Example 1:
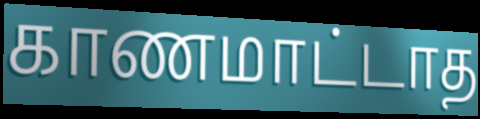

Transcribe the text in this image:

காணமாட்டாத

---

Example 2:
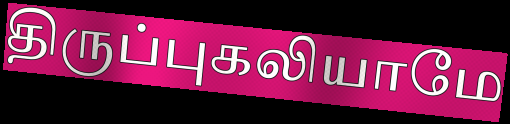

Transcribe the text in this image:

திருப்புகலியாமே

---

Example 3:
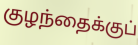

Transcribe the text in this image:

குழந்தைக்குப்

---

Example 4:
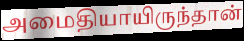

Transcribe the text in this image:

அமைதியாயிருந்தான்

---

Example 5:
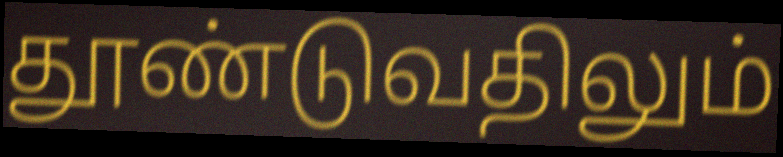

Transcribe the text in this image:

தூண்டுவதிலும்